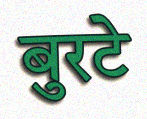
बुरटे